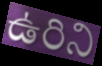
ఉరిని